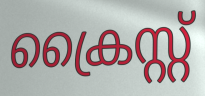
ക്രൈസ്റ്റ്